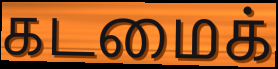
கடமைக்